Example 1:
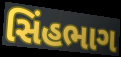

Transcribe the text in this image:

સિંહભાગ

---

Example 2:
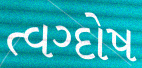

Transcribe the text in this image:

ત્વગ્દોષ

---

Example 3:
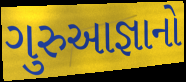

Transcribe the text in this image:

ગુરુઆજ્ઞાનો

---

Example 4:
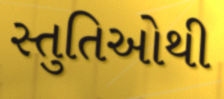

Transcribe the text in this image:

સ્તુતિઓથી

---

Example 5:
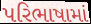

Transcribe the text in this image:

પરિભાષામાં